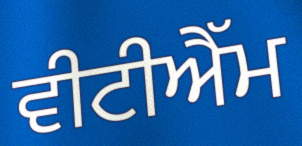
ਵੀਟੀਐੱਮ